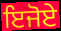
ਇਜੋਏ